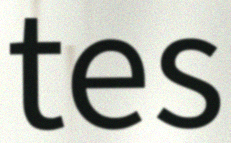
tes